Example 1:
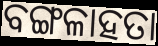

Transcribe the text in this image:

ବଙ୍ଗଳାହତା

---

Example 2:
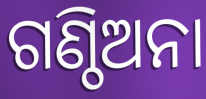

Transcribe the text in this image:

ଗଣ୍ଠିଅନା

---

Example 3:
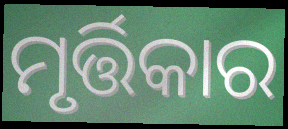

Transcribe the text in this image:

ମୃର୍ତ୍ତିକାର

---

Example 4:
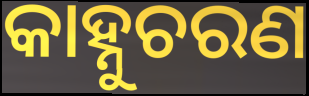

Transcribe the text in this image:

କାହ୍ନୁଚରଣ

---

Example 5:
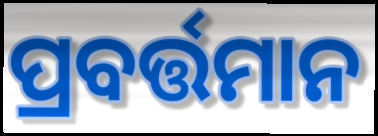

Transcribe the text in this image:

ପ୍ରବର୍ତ୍ତମାନ